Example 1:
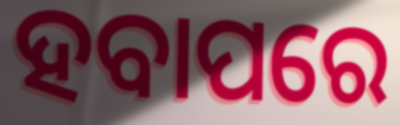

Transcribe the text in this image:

ହବାପରେ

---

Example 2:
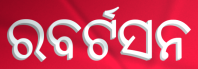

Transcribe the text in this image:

ରବର୍ଟସନ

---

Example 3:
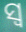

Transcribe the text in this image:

ସ୍ୱ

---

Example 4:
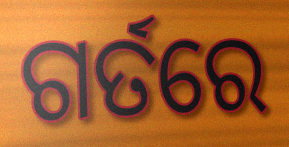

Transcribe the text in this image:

ଗର୍ତରେ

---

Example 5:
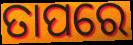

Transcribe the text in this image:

ତାପରେ